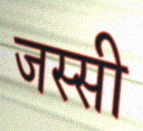
जस्सी